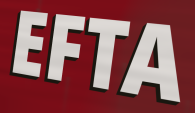
EFTA